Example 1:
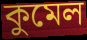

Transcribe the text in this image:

কুমেল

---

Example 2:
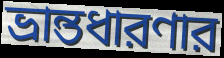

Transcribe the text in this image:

ভ্রান্তধারণার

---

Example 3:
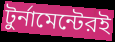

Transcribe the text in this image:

টুর্নামেন্টেরই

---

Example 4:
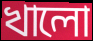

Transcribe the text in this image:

খালো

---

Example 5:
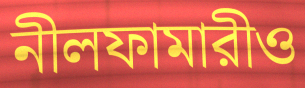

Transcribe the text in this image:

নীলফামারীও